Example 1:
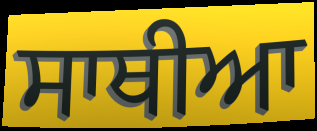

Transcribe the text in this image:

ਸਾਥੀਆ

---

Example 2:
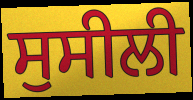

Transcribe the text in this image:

ਸੁਸੀਲੀ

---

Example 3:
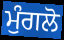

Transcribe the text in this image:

ਮੁੰਗਲੋ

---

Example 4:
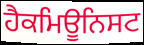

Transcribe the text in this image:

ਹੈਕਮਿਊਨਿਸਟ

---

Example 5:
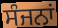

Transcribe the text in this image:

ਸੰਜਨਾਂ